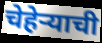
चेहेऱ्याची